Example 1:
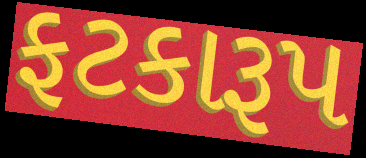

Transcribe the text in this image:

ફટકારૂપ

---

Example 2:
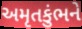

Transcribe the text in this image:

અમૃતકુંભને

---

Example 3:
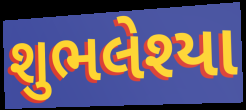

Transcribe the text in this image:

શુભલેશ્યા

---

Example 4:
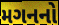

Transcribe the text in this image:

મગનનો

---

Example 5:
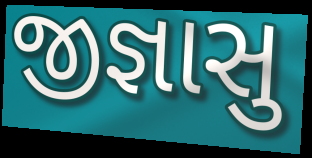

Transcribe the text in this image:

જીજ્ઞાસુ